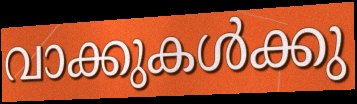
വാക്കുകൾക്കു